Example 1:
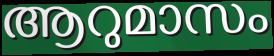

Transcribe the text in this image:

ആറുമാസം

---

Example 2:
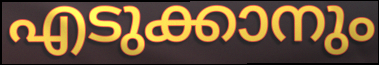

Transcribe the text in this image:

എടുക്കാനും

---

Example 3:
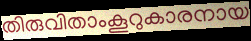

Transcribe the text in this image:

തിരുവിതാംകൂറുകാരനായ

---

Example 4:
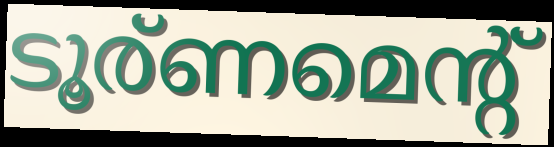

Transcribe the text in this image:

ടൂര്ണമെന്റ്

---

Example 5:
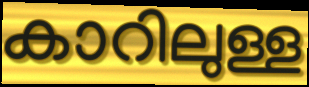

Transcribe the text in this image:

കാറിലുള്ള